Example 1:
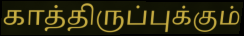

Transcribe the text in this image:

காத்திருப்புக்கும்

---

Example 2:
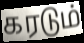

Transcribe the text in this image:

கரடும்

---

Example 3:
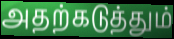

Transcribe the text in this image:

அதற்கடுத்தும்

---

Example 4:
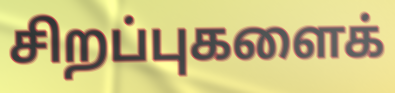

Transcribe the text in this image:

சிறப்புகளைக்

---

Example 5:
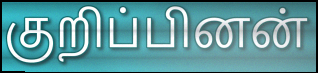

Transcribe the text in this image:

குறிப்பினன்